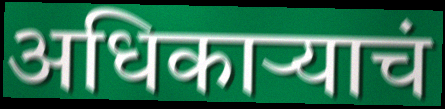
अधिकाऱ्याचं